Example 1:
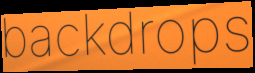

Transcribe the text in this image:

backdrops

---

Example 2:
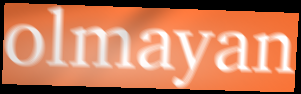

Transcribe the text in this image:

olmayan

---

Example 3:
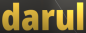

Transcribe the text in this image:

darul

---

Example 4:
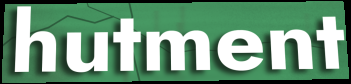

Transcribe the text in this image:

hutment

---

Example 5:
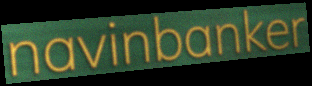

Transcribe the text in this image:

navinbanker